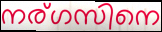
നര്ഗസിനെ